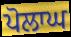
ਪੋਲਾਘ